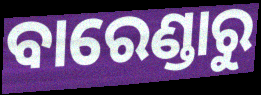
ବାରେଣ୍ଡାରୁ